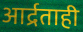
आर्द्रताही